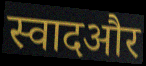
स्वादऔर